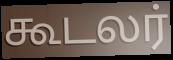
கூடலர்